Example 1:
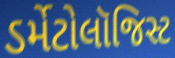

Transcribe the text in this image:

ડર્મેટોલૉજિસ્ટ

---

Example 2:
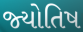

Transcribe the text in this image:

જ્‍યોતિષ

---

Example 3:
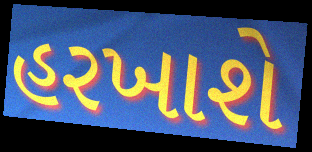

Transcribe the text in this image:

હરખાશે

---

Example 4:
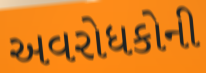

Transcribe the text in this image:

અવરોધકોની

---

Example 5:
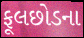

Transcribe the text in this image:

ફૂલછોડના